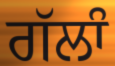
ਗੱਲਾੰ